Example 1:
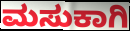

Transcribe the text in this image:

ಮಸುಕಾಗಿ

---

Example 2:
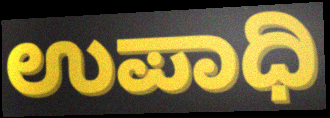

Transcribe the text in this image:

ಉಪಾಧಿ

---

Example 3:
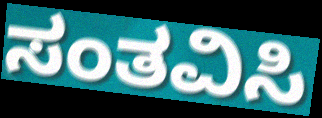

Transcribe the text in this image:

ಸಂತವಿಸಿ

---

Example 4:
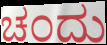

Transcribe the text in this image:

ಚಂದು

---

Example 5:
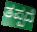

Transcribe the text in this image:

ತಪ್ಪದೆ